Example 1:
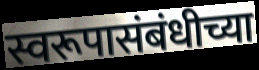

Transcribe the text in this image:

स्वरूपासंबंधीच्या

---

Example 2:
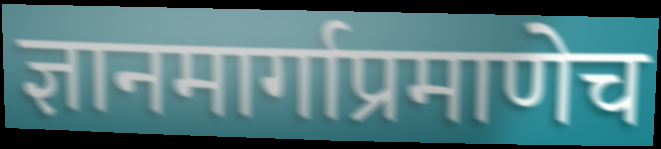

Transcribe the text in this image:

ज्ञानमार्गाप्रमाणेच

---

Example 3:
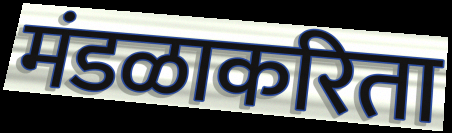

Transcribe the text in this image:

मंडळाकरिता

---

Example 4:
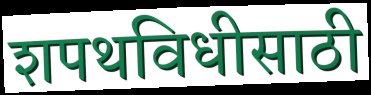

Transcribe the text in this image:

शपथविधीसाठी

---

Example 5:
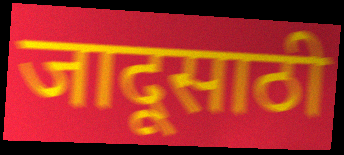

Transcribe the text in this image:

जादूसाठी